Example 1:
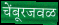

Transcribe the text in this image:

चेंबूरजवळ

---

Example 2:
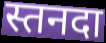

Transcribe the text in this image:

स्तनदा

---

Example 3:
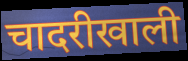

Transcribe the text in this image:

चादरीखाली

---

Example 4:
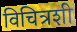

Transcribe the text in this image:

विचित्रशी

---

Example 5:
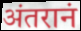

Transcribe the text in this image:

अंतरानं